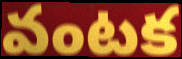
వంటక